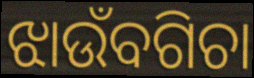
ଝାଉଁବଗିଚା